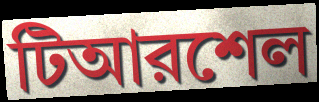
টিআরশেল